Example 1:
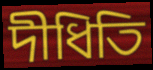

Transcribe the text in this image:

দীধিতি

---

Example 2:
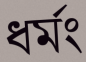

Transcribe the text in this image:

ধর্মং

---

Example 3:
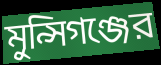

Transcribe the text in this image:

মুন্সিগঞ্জের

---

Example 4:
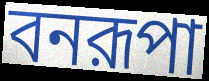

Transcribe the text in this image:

বনরূপা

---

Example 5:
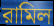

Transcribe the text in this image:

রামিল